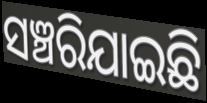
ସଞ୍ଚରିଯାଇଛି